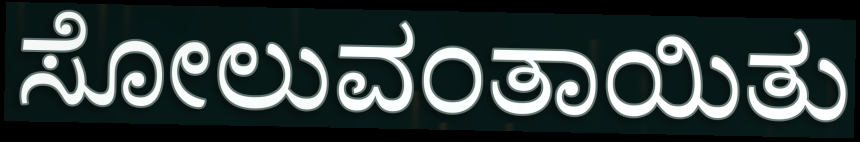
ಸೋಲುವಂತಾಯಿತು